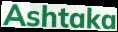
Ashtaka